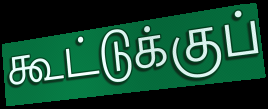
கூட்டுக்குப்